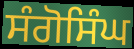
ਸੰਗੋਸਿੰਘ